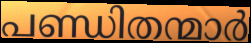
പണ്ഡിതന്മാർ